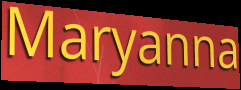
Maryanna